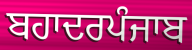
ਬਹਾਦਰਪੰਜਾਬ